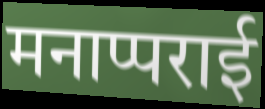
मनाप्पराई